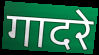
गादरे